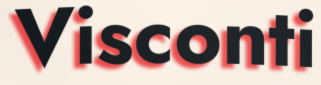
Visconti